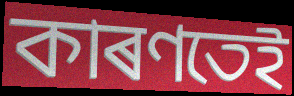
কাৰণতেই